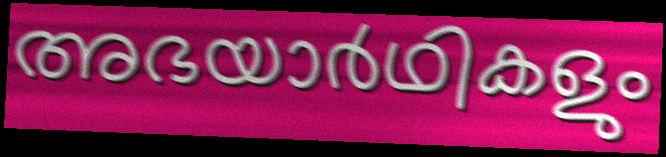
അഭയാർഥികളും